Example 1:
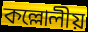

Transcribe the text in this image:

কল্লোলীয়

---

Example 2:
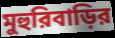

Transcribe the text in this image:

মুহুরিবাড়ির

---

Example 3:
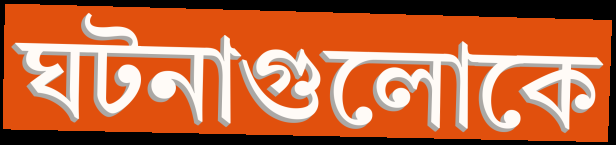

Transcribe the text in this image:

ঘটনাগুলোকে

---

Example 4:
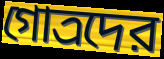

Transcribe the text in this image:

গোত্রদের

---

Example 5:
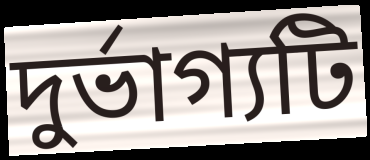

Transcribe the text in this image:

দুর্ভাগ্যটি